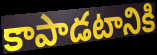
కాపాడటానికి